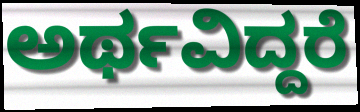
ಅರ್ಥವಿದ್ದರೆ